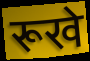
रूखे